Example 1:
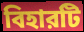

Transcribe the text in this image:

বিহারটি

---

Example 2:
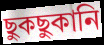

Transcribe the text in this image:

ছুকছুকানি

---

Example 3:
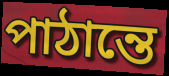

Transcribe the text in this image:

পাঠান্তে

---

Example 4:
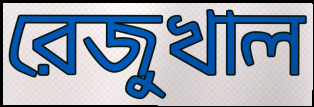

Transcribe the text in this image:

রেজুখাল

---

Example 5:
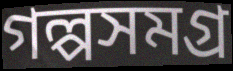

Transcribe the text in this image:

গল্পসমগ্র